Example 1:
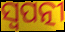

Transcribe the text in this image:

ସ୍ୱପତ୍ନୀ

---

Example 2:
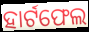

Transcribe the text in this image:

ହାର୍ଟଫେଲ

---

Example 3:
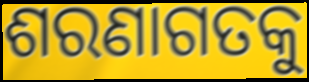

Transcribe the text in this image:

ଶରଣାଗତକୁ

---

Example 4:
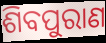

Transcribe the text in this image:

ଶିବପୁରାଣ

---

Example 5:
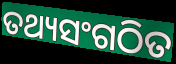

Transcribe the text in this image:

ତଥ୍ୟସଂଗଠିତ